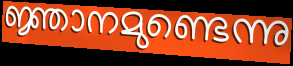
ജ്ഞാനമുണ്ടെന്നു